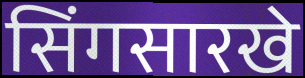
सिंगसारखे